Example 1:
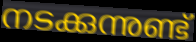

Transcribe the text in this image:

നടക്കുന്നുണ്ട്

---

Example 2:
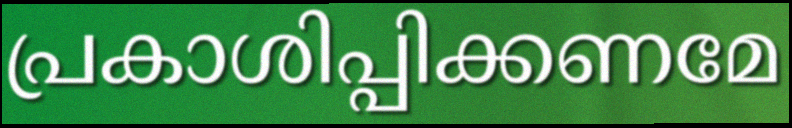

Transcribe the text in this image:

പ്രകാശിപ്പിക്കണമേ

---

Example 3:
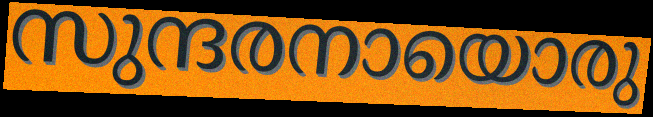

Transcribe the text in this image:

സുന്ദരനായൊരു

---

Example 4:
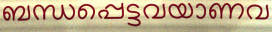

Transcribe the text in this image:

ബന്ധപ്പെട്ടവയാണവ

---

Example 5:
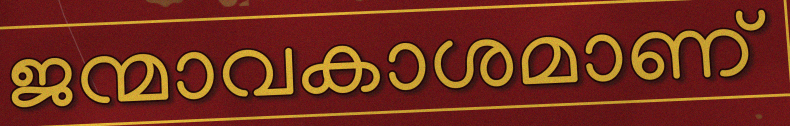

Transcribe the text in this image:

ജന്മാവകാശമാണ്